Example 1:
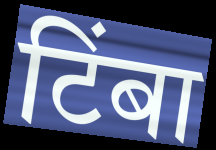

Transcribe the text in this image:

टिंबा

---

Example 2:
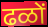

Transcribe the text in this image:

ढळों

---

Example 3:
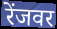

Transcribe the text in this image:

रेंजवर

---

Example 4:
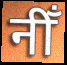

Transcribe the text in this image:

नीँ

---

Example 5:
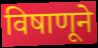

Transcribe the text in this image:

विषाणूने